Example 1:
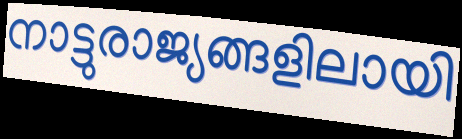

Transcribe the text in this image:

നാട്ടുരാജ്യങ്ങളിലായി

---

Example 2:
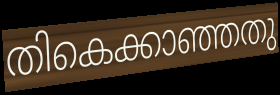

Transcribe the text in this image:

തികെക്കാഞ്ഞതു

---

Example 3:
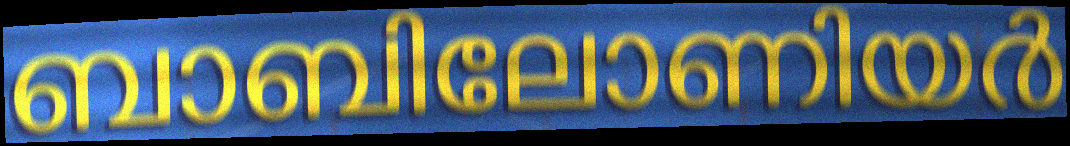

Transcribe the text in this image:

ബാബിലോണിയർ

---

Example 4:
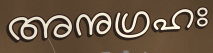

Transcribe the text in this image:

അനുഗ്രഹഃ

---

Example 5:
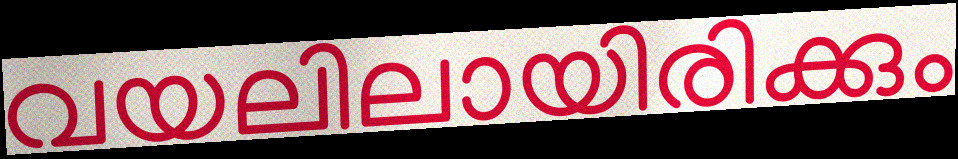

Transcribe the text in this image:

വയലിലായിരിക്കും